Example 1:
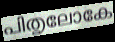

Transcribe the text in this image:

പിതൃലോകേ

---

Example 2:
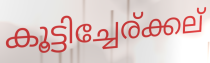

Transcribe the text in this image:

കൂട്ടിച്ചേര്ക്കല്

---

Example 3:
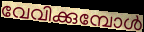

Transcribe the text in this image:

വേവിക്കുമ്പോൾ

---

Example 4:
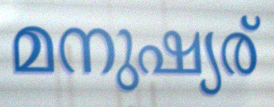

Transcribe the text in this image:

മനുഷ്യര്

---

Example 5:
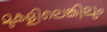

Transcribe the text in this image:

മുകളിലെങ്കിലും